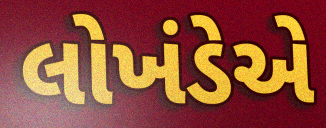
લોખંડેએ